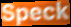
Speck